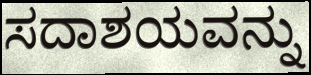
ಸದಾಶಯವನ್ನು